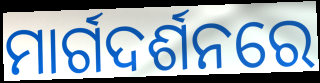
ମାର୍ଗଦର୍ଶନରେ